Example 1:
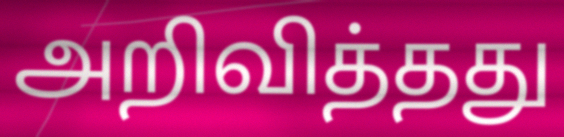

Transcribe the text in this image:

அறிவித்தது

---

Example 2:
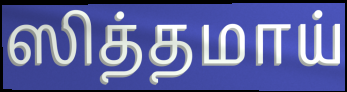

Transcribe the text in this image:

ஸித்தமாய்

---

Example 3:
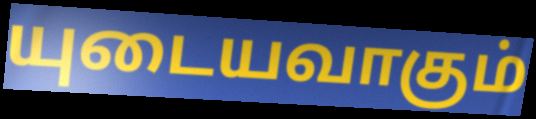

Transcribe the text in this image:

யுடையவாகும்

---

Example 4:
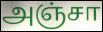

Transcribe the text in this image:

அஞ்சா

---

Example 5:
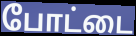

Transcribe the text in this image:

போட்டை